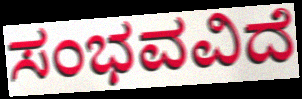
ಸಂಭವವಿದೆ